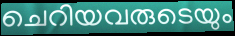
ചെറിയവരുടെയും